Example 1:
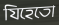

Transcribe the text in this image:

যিহেতো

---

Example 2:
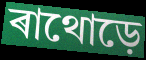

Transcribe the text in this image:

ৰাথোড়ে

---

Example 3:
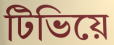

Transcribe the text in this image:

টিভিয়ে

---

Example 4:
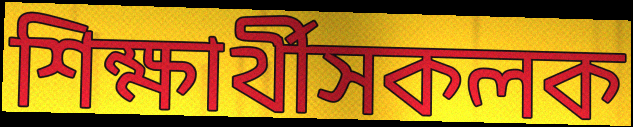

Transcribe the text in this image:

শিক্ষাৰ্থীসকলক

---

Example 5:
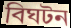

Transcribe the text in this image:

বিঘটন